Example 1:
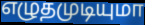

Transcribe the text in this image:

எழுதமுடியுமா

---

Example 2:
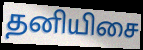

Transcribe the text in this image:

தனியிசை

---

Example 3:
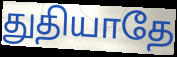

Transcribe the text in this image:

துதியாதே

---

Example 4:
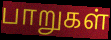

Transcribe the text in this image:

பாறுகள்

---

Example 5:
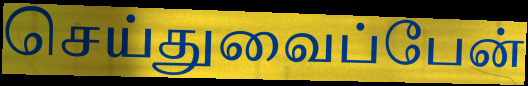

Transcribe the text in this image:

செய்துவைப்பேன்